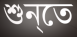
শুন্‌তে